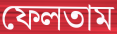
ফেলতাম